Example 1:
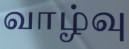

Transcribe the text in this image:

வாழ்வு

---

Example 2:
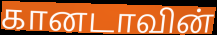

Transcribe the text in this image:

கானடாவின்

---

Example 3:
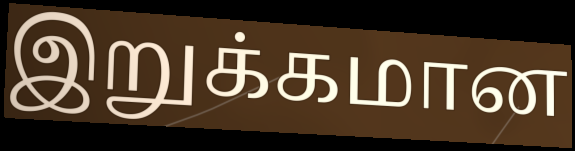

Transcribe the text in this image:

இறுக்கமான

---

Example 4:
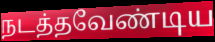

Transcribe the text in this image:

நடத்தவேண்டிய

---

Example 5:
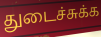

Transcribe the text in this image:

துடைச்சுக்க